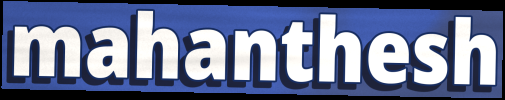
mahanthesh